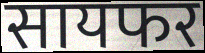
सायफर